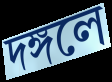
দঙ্গলে